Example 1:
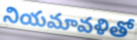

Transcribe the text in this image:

నియమావళితో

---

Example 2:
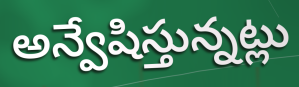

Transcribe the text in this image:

అన్వేషిస్తున్నట్లు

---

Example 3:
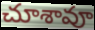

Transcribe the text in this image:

చూశావూ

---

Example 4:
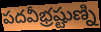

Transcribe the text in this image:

పదవీభ్రష్టుణ్ని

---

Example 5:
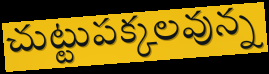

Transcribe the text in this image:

చుట్టుపక్కలవున్న